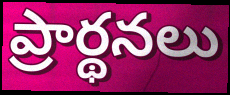
ప్రార్థనలు